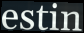
estin